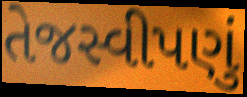
તેજસ્વીપણું